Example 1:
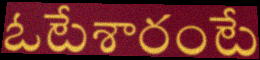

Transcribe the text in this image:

ఓటేశారంటే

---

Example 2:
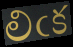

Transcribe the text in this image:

లిఁక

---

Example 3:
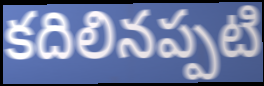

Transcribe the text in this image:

కదిలినప్పటి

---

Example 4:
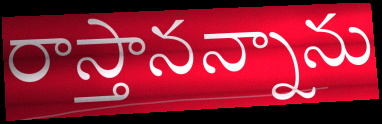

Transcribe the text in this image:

రాస్తానన్నాను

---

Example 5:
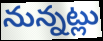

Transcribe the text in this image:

నున్నట్లు